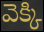
వెక్కి